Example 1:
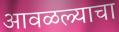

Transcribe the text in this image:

आवळल्याचा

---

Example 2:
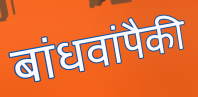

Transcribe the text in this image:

बांधवांपैकी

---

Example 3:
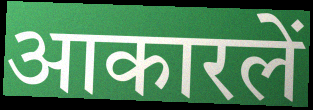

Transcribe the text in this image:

आकारलें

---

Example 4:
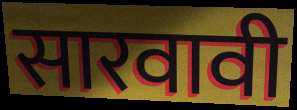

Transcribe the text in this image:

सारवावी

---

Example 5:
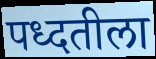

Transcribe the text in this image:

पध्दतीला